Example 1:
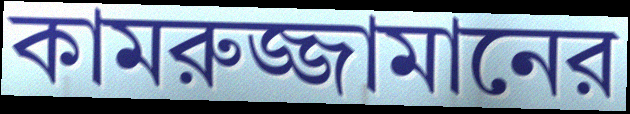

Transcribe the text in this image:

কামরুজ্জামানের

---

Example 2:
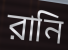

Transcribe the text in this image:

রানি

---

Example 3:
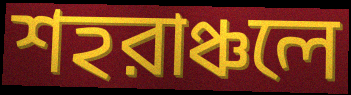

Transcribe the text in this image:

শহরাঞ্চলে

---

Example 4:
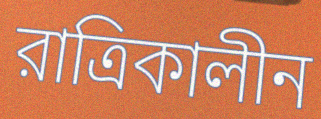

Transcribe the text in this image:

রাত্রিকালীন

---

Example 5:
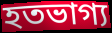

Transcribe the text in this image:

হতভাগ্য